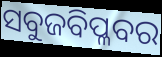
ସବୁଜବିପ୍ଳବର